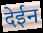
देईन